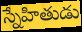
స్నేహితుడు